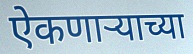
ऐकणाऱ्याच्या